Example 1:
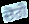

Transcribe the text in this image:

ਚੋਗੇ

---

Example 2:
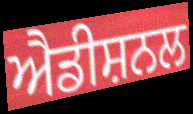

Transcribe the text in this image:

ਐਡੀਸ਼ਨਲ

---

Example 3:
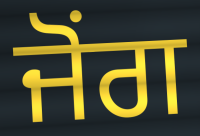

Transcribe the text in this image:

ਜੋਂਗ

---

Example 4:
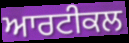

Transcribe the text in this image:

ਆਰਟੀਕਲ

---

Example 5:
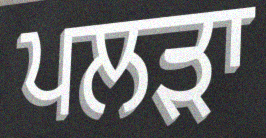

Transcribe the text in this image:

ਪਲੜਾ